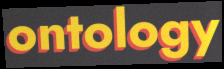
ontology